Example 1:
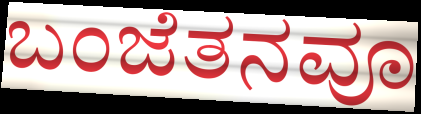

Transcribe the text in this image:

ಬಂಜೆತನವೂ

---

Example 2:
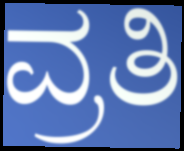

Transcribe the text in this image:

ವ್ರತಿ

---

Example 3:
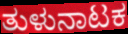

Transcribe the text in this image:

ತುಳುನಾಟಕ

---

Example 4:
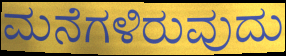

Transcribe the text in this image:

ಮನೆಗಳಿರುವುದು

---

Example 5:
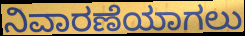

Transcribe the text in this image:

ನಿವಾರಣೆಯಾಗಲು